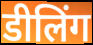
डीलिंग